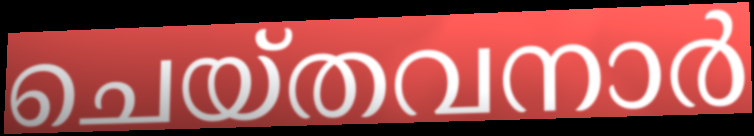
ചെയ്തവനാർ